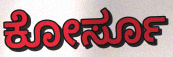
ಕೋರ್ಸೂ